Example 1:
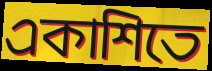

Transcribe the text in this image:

একাশিতে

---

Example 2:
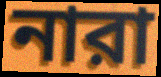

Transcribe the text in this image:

নারা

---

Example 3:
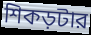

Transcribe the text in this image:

শিকড়টার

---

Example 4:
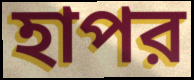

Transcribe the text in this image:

হাপর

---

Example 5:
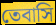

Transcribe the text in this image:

তেবাসি